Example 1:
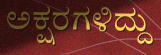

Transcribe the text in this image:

ಅಕ್ಷರಗಳಿದ್ದು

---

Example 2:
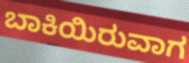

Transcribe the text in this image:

ಬಾಕಿಯಿರುವಾಗ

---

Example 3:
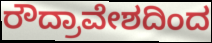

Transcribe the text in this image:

ರೌದ್ರಾವೇಶದಿಂದ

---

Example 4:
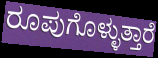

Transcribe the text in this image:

ರೂಪುಗೊಳ್ಳುತ್ತಾರೆ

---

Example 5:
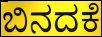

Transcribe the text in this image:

ಬಿನದಕೆ